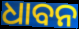
ଧାବନ